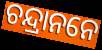
ଚନ୍ଦ୍ରାନନେ